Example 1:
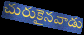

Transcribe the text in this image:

చురుకైనవాడు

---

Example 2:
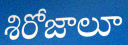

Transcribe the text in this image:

శిరోజాలూ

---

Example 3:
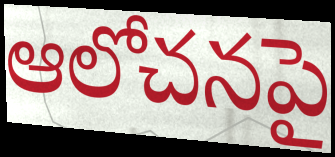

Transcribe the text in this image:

ఆలోచనపై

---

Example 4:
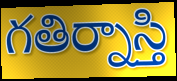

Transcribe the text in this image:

గతిర్నాస్తి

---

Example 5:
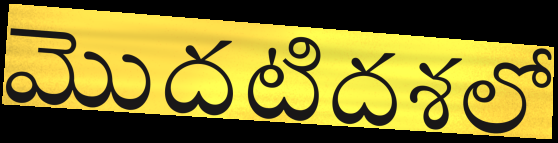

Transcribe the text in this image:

మొదటిదశలో